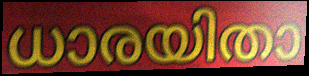
ധാരയിതാ